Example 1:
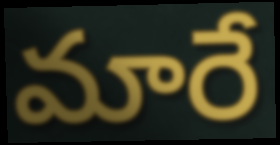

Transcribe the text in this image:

మారే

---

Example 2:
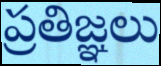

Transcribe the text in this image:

ప్రతిజ్ఞలు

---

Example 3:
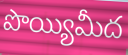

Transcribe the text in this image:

పొయ్యిమీద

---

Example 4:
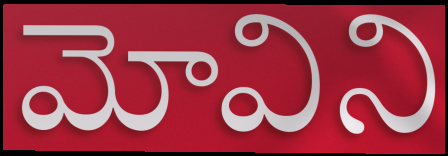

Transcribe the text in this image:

మోవిని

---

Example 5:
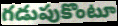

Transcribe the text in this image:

గడుపుకొంటూ